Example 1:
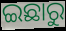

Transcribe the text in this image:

ଇଛାରୁ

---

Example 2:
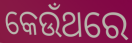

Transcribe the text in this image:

କେଉଁଥରେ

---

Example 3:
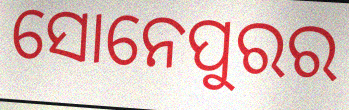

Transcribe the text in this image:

ସୋନେପୁରର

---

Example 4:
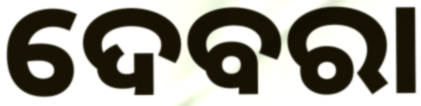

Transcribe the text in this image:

ଦେବରା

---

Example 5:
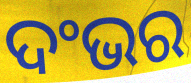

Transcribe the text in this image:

ଦଂଭର